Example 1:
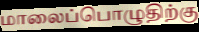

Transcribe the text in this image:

மாலைப்பொழுதிற்கு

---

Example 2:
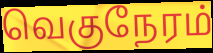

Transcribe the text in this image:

வெகுநேரம்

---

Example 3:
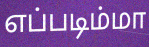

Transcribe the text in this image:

எப்படிம்மா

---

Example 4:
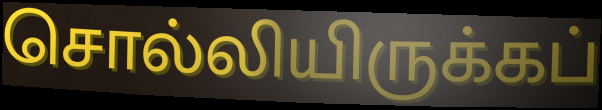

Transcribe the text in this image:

சொல்லியிருக்கப்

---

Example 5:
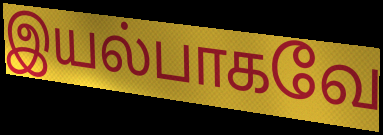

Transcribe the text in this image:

இயல்பாகவே